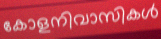
കോളനിവാസികൾ